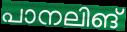
പാനലിങ്